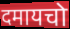
दमायचो